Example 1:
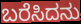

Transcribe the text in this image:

ಬರೆಸಿದನು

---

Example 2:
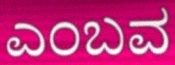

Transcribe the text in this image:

ಎಂಬವ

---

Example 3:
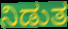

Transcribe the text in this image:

ನಿಡುತ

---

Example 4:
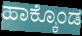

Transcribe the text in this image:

ಹಾಕ್ಕೊಂಡ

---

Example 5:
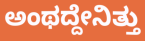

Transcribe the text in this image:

ಅಂಥದ್ದೇನಿತ್ತು